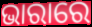
ଭାରାରେ